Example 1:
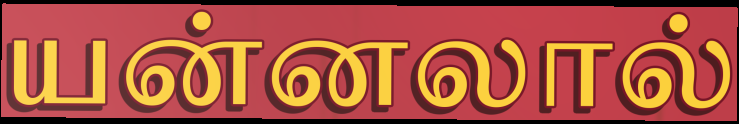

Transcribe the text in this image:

யன்னலால்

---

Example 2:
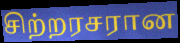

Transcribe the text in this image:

சிற்றரசரான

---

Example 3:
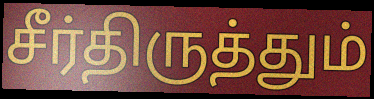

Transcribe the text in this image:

சீர்திருத்தும்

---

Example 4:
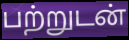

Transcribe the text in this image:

பற்றுடன்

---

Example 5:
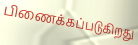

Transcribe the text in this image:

பிணைக்கப்படுகிறது